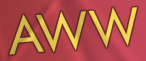
AWW